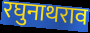
रघुनाथराव